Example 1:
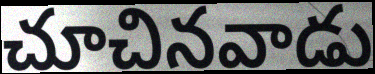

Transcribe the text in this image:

చూచినవాడు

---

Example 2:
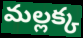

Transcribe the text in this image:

మల్లక్క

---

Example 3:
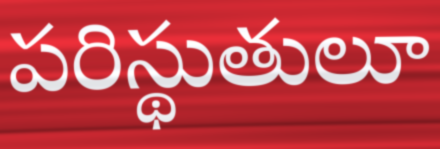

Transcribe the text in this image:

పరిస్థుతులూ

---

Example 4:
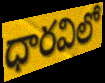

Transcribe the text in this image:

ధారవిలో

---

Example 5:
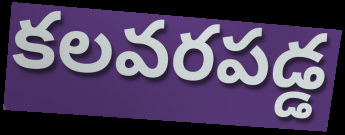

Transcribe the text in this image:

కలవరపడ్డ